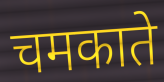
चमकाते